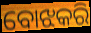
ବୋଝକରି